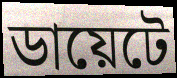
ডায়েটে